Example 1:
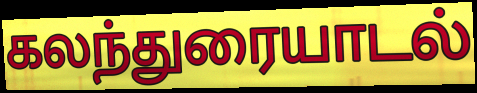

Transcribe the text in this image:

கலந்துரையாடல்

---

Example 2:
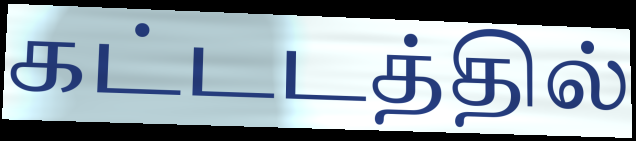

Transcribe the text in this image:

கட்டடத்தில்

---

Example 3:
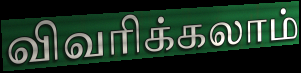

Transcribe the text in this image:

விவரிக்கலாம்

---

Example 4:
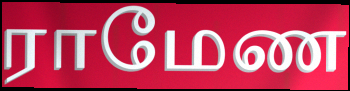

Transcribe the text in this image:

ராமேண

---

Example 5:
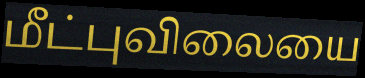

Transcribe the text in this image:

மீட்புவிலையை